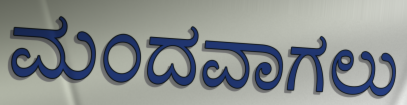
ಮಂದವಾಗಲು